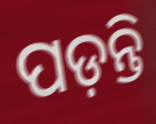
ପଡ଼ନ୍ତି